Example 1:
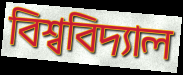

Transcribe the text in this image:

বিশ্ববিদ্যাল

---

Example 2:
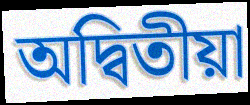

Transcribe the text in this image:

অদ্বিতীয়া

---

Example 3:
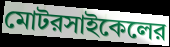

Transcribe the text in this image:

মোটরসাইকেলের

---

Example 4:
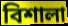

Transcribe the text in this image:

বিশালা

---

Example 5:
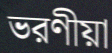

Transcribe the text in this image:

ভরণীয়া